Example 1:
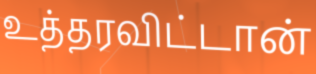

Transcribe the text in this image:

உத்தரவிட்டான்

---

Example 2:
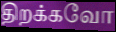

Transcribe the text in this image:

திறக்கவோ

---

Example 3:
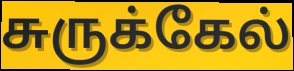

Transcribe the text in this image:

சுருக்கேல்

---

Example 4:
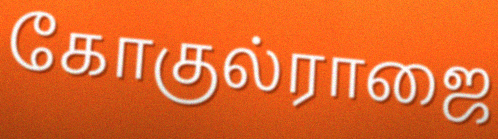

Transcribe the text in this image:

கோகுல்ராஜை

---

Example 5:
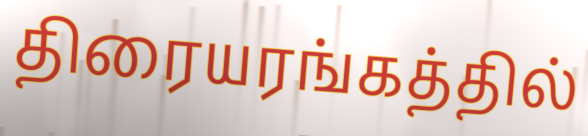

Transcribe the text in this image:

திரையரங்கத்தில்